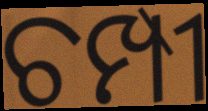
ଚମ୍ପୀ